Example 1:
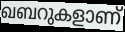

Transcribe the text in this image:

ഖബറുകളാണ്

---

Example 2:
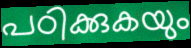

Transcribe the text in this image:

പഠിക്കുകയും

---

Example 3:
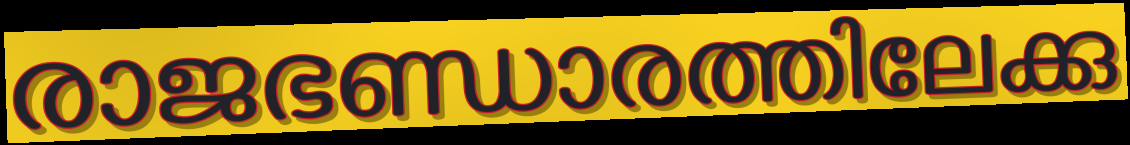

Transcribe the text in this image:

രാജഭണ്ഡാരത്തിലേക്കു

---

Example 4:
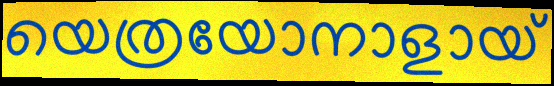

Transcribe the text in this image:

യെത്രയോനാളായ്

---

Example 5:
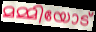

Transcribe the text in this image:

മമ്മിയോട്